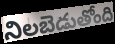
నిలబెడుతోంది